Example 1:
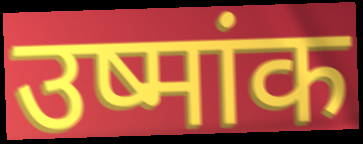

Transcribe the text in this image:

उष्मांक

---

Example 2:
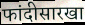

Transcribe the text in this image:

फांदीसारखा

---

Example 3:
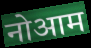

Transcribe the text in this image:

नोआम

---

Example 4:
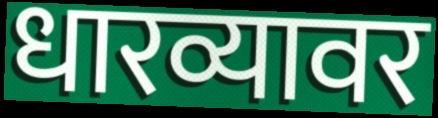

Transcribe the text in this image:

धारव्यावर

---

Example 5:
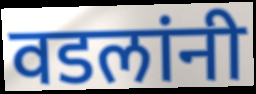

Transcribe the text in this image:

वडलांनी